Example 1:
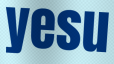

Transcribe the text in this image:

yesu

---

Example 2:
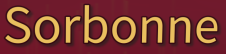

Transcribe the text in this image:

Sorbonne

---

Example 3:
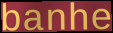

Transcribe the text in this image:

banhe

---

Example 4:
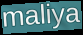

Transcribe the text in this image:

maliya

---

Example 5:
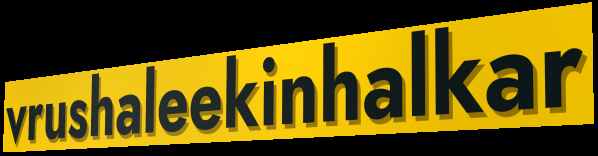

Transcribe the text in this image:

vrushaleekinhalkar